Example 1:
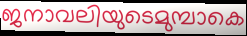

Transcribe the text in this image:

ജനാവലിയുടെമുമ്പാകെ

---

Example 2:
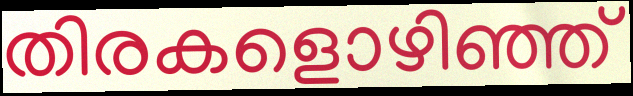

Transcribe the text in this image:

തിരകളൊഴിഞ്ഞ്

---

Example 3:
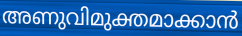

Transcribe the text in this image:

അണുവിമുക്തമാക്കാൻ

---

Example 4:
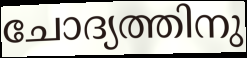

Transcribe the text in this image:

ചോദ്യത്തിനു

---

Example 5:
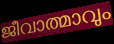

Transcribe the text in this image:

ജീവാത്മാവും